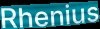
Rhenius